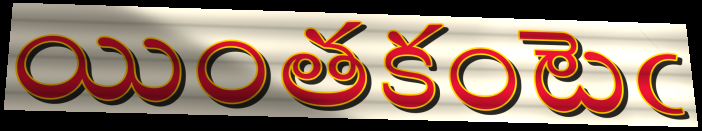
యింతకంటెఁ